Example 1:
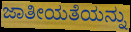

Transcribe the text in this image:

ಜಾತೀಯತೆಯನ್ನು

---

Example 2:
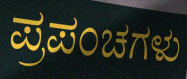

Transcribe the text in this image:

ಪ್ರಪಂಚಗಳು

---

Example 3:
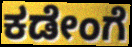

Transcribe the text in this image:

ಕಡೇಂಗೆ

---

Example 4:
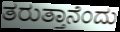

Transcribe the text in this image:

ತರುತ್ತಾನೆಂದು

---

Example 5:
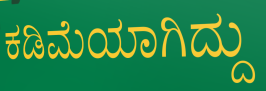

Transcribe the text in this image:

ಕಡಿಮೆಯಾಗಿದ್ದು